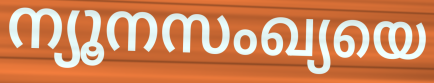
ന്യൂനസംഖ്യയെ